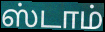
ஸ்டாம்